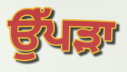
ਉੱਪੜਾ